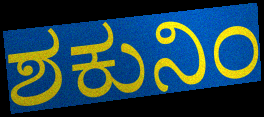
ಶಕುನಿಂ